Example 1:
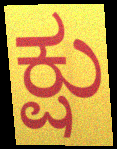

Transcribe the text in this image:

ಕ್ಷು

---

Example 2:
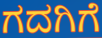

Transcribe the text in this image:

ಗದಗಿಗೆ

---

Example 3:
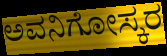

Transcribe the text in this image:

ಅವನಿಗೋಸ್ಕರ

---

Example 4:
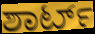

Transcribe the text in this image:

ಶಾರ್ಟ್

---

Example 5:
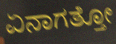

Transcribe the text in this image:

ಏನಾಗತ್ತೋ